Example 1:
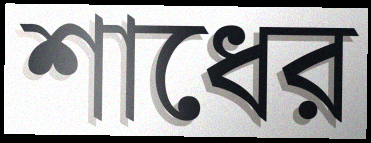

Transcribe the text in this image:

শাধের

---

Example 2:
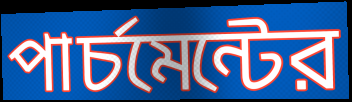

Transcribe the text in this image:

পার্চমেন্টের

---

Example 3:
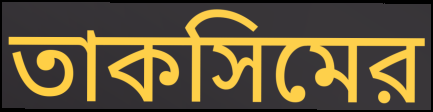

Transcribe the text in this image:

তাকসিমের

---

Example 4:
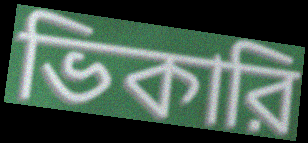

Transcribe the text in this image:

ভিকারি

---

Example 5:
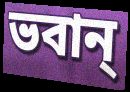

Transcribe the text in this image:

ভবান্